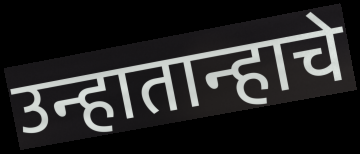
उन्हातान्हाचे